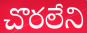
చొరలేని